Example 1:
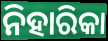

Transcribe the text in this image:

ନିହାରିକା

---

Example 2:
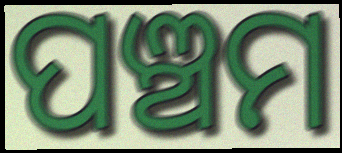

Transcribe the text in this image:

ପଞ୍ଚମ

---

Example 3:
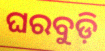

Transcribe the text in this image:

ଘରବୁଡ଼ି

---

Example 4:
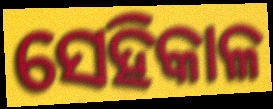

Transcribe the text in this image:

ସେହିକାଳ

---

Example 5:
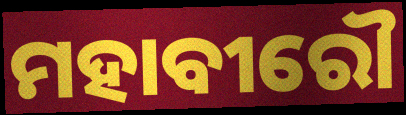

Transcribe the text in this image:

ମହାବୀରୌ